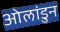
ओलांडुन